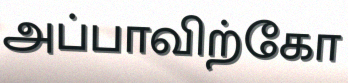
அப்பாவிற்கோ